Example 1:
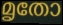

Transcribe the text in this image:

മൃതോ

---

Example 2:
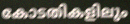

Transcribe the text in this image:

കോടതികളിലും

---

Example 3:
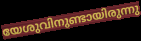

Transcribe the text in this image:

യേശുവിനുണ്ടായിരുന്നു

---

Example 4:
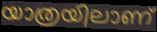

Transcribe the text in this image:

യാത്രയിലാണ്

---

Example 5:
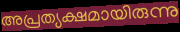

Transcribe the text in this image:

അപ്രത്യക്ഷമായിരുന്നു